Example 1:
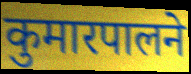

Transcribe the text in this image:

कुमारपालने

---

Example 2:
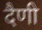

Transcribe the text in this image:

दैणी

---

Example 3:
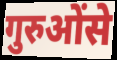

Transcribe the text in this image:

गुरुओंसे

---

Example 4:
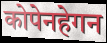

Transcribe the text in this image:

कोपेनहेगन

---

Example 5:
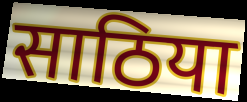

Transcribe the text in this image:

साठिया